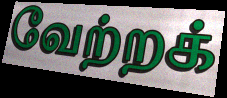
வேற்றக்